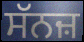
ਸੱਨਜ਼